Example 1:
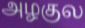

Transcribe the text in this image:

அழகுல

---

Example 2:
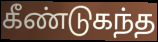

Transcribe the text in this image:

கீண்டுகந்த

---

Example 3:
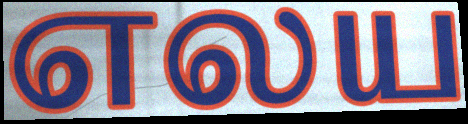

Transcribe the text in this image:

எலய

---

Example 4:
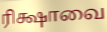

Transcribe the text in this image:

ரிக்ஷாவை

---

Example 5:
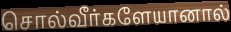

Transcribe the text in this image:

சொல்வீர்களேயானால்